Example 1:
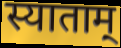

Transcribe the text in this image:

स्याताम्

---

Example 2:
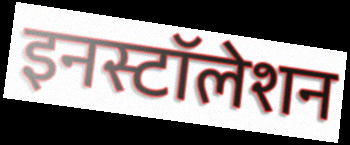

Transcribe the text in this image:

इनस्टॉलेशन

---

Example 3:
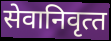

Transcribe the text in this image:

सेवानिवृत्‍त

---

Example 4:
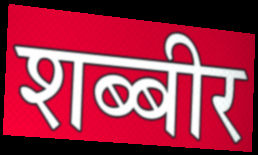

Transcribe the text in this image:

शब्बीर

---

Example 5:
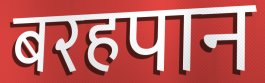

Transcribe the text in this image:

बरहपान